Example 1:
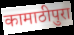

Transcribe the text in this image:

कामाठीपुरा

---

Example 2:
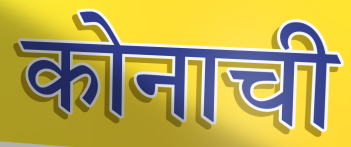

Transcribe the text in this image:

कोनाची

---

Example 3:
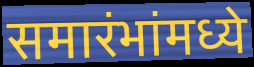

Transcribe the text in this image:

समारंभांमध्ये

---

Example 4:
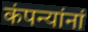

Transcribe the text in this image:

कंपन्यांनां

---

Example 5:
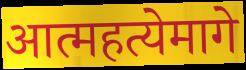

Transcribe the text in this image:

आत्महत्येमागे